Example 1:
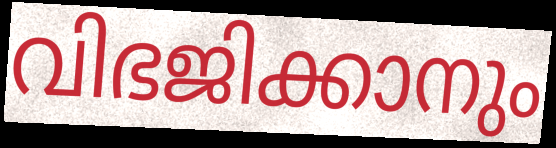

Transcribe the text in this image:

വിഭജിക്കാനും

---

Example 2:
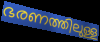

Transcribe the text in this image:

ഭരണത്തിലുള്ള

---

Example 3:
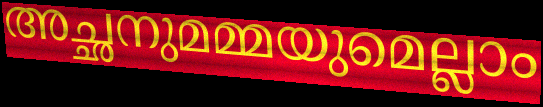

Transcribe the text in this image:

അച്ഛനുമമ്മയുമെല്ലാം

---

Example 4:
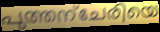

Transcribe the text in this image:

പുത്തന്ചേരിയെ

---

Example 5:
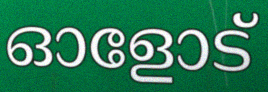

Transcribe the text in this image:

ഓളോട്